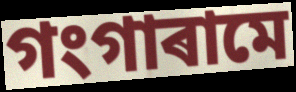
গংগাৰামে